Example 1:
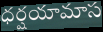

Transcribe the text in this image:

ధర్షయామాస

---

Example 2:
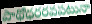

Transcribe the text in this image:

పాథోధరరవపటునా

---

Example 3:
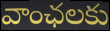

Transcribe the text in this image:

వాంఛలకు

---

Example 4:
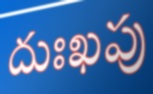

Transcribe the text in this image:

దుఃఖపు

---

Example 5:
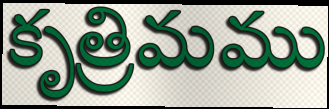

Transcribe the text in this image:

కృత్రిమము